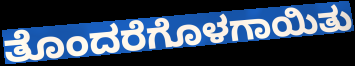
ತೊಂದರೆಗೊಳಗಾಯಿತು